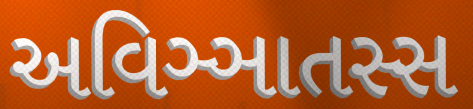
અવિઞ્ઞાતસ્સ